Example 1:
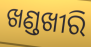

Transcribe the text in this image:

ଖଣ୍ଡଖୀରି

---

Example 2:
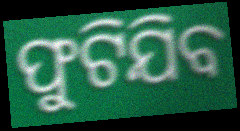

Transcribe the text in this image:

ଫୁଟିଯିବ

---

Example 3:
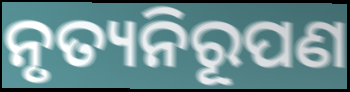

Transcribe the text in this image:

ନୃତ୍ୟନିରୂପଣ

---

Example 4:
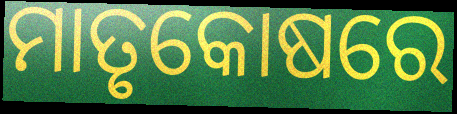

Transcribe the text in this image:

ମାତୃକୋଷରେ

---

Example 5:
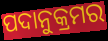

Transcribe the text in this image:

ପଦାନୁକ୍ରମର